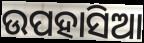
ଉପହାସିଆ